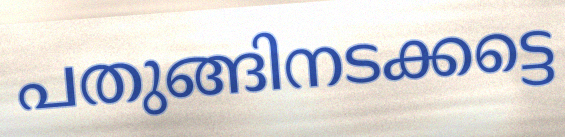
പതുങ്ങിനടക്കട്ടെ